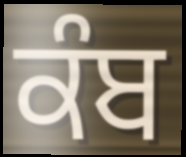
ਕੰਬ